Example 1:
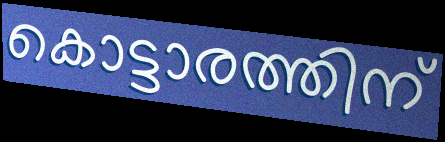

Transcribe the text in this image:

കൊട്ടാരത്തിന്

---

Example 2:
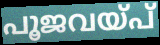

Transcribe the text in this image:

പൂജവയ്പ്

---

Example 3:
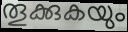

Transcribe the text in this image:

തൂക്കുകയും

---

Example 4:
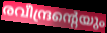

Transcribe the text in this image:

രവീന്ദ്രന്റെയും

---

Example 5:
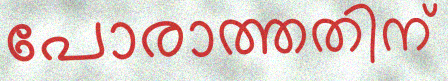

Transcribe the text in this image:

പോരാത്തതിന്